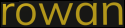
rowan